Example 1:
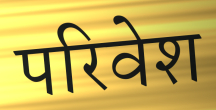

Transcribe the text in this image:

परिवेश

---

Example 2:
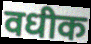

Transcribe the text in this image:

वधीक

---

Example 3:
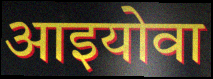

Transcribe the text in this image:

आइयोवा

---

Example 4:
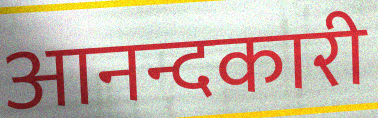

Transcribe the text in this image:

आनन्दकारी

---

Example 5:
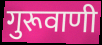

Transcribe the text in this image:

गुरूवाणी